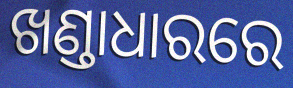
ଖଣ୍ଡାଧାରରେ